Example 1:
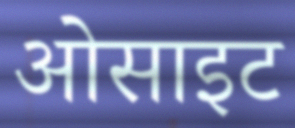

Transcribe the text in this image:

ओसाइट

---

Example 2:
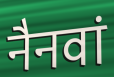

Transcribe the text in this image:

नैनवां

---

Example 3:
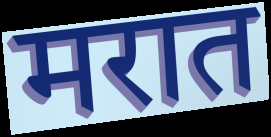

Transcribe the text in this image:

मरात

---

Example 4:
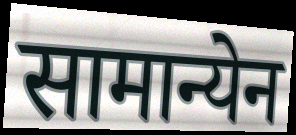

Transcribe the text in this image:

सामान्येन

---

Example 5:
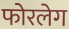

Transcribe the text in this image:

फोरलेग